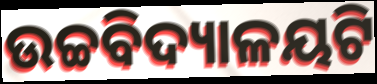
ଉଚ୍ଚବିଦ୍ୟାଳୟଟି